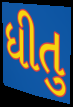
ધીતુ